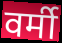
वर्मी